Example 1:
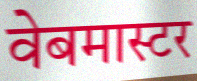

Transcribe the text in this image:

वेबमास्टर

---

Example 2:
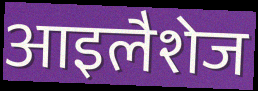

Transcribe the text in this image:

आइलैशेज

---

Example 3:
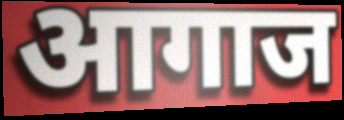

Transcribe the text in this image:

आगाज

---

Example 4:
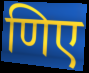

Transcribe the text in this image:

णिए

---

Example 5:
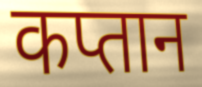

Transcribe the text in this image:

कप्तान